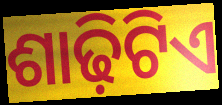
ଶାଢ଼ିଟିଏ